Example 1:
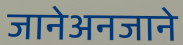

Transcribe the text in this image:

जानेअनजाने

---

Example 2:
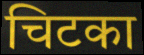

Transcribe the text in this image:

चिटका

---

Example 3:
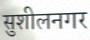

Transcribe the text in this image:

सुशीलनगर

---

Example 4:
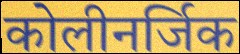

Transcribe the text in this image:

कोलीनर्जिक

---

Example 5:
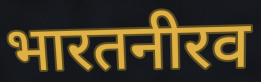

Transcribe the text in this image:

भारतनीरव